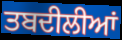
ਤਬਦੀਲੀਆਂ